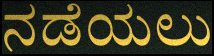
ನಡೆಯಲು